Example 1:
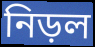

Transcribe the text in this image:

নিড়ল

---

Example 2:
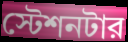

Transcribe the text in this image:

স্টেশনটার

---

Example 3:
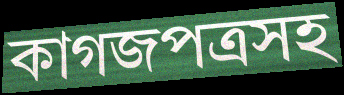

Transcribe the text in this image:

কাগজপত্রসহ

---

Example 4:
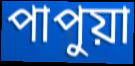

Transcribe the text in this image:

পাপুয়া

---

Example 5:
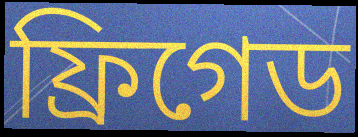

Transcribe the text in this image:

ফ্রিগেড